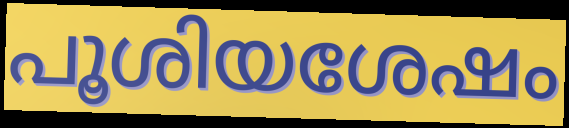
പൂശിയശേഷം